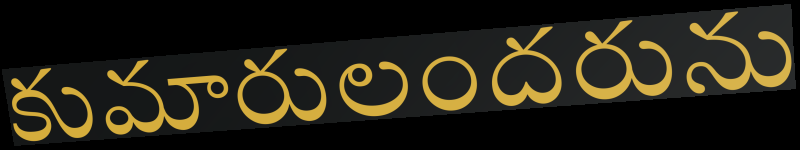
కుమారులందరును